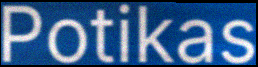
Potikas